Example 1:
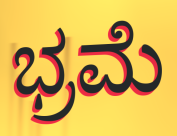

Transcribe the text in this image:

ಭ್ರಮೆ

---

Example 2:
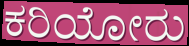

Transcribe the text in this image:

ಕರಿಯೋರು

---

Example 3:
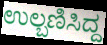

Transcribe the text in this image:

ಉಲ್ಬಣಿಸಿದ್ದ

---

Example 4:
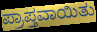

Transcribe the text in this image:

ಪ್ರಾಪ್ತವಾಯಿತು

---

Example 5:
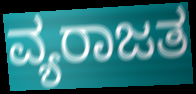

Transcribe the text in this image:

ವ್ಯರಾಜತ